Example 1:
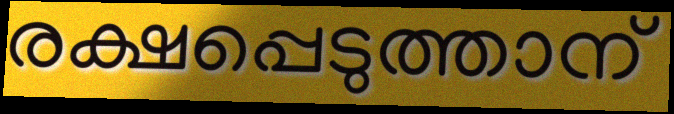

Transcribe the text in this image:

രക്ഷപ്പെടുത്താന്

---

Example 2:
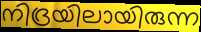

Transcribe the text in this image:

നിദ്രയിലായിരുന്ന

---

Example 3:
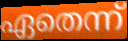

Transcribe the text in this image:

ഏതെന്ന്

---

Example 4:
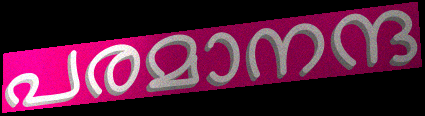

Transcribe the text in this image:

പരമാനന്ദ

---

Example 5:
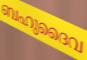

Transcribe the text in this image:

ബഹുദൈവ